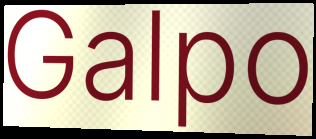
Galpo